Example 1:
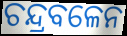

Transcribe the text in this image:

ଚନ୍ଦ୍ରବଳେନ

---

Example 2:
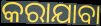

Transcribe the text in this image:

କରାଯାବା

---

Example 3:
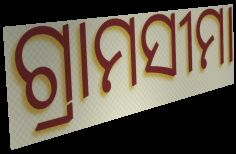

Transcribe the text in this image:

ଗ୍ରାମସୀମା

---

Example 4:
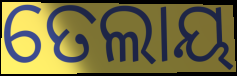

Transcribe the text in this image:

ତେଲାୟ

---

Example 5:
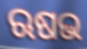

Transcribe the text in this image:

ଋଷଭ